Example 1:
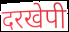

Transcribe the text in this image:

दरखेपी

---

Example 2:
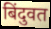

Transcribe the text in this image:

बिंदुवत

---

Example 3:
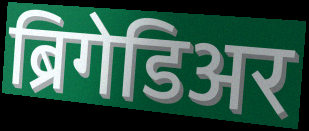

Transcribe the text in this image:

ब्रिगेडिअर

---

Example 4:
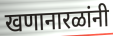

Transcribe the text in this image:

खणानारळांनी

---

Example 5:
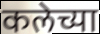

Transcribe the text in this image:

कलेच्या